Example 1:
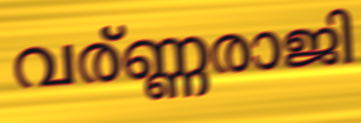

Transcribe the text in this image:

വര്ണ്ണരാജി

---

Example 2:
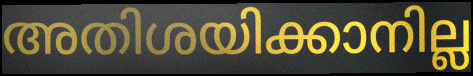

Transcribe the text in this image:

അതിശയിക്കാനില്ല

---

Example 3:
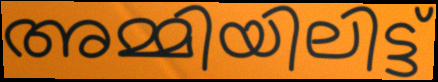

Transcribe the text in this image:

അമ്മിയിലിട്ട്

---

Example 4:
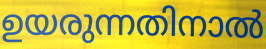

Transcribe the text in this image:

ഉയരുന്നതിനാൽ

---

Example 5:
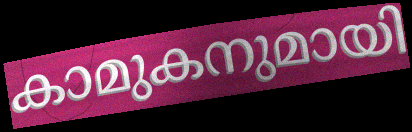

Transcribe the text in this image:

കാമുകനുമായി